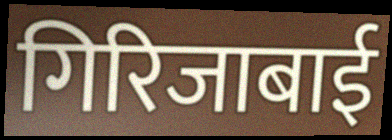
गिरिजाबाई